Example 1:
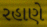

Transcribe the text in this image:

રહાણે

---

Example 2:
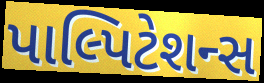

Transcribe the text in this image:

પાલ્પિટેશન્સ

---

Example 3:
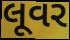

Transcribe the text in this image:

લૂવર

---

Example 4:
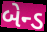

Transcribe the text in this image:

બેન્ડ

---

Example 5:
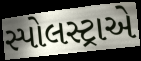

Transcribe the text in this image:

સ્પોલસ્ટ્રાએ